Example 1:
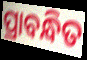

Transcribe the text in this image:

ପ୍ରାବନ୍ଧିତ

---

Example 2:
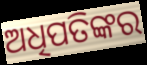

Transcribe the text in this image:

ଅଧିପତିଙ୍କର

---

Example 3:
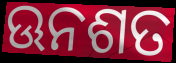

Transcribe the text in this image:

ଊନଶତ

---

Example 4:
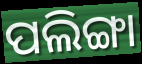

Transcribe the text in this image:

ପଲିଙ୍ଗା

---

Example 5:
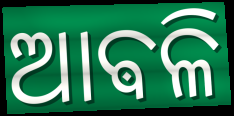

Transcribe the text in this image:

ଆଵଳି